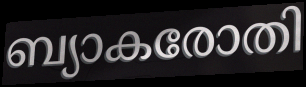
ബ്യാകരോതി